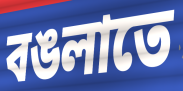
বঙলাতে